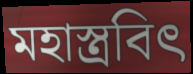
মহাস্ত্রবিৎ